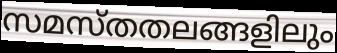
സമസ്തതലങ്ങളിലും